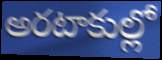
అరటాకుల్లో